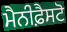
ਮੈਨੀਫ਼ੈਸਟੋ